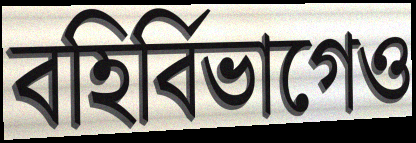
বহির্বিভাগেও